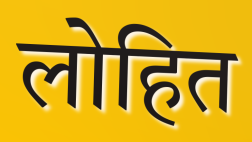
लोहित